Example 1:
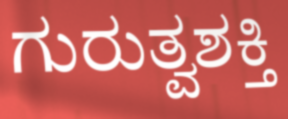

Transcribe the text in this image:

ಗುರುತ್ವಶಕ್ತಿ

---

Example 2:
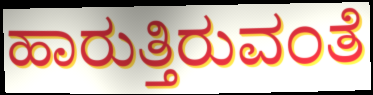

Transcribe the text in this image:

ಹಾರುತ್ತಿರುವಂತೆ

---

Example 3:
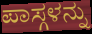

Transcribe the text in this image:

ಪಾಸ್ಗಳನ್ನು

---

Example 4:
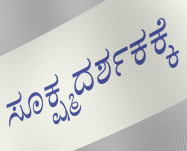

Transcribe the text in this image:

ಸೂಕ್ಷ್ಮದರ್ಶಕಕ್ಕೆ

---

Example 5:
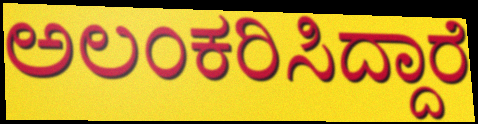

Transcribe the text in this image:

ಅಲಂಕರಿಸಿದ್ದಾರೆ